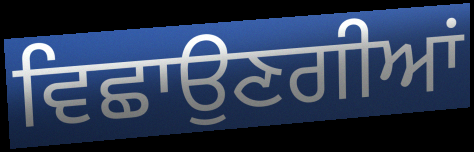
ਵਿਛਾਉਣਗੀਆਂ